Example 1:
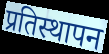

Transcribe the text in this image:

प्रतिस्थापन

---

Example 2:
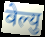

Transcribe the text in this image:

वेल्यु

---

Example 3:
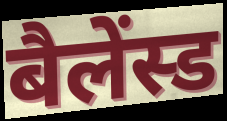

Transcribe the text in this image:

बैलेंस्ड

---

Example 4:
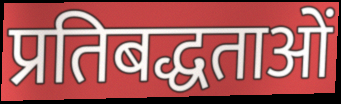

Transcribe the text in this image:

प्रतिबद्धताओं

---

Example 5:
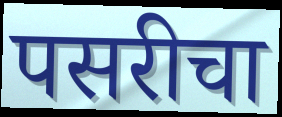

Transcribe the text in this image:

पसरीचा